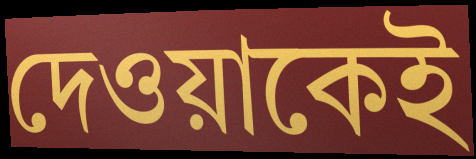
দেওয়াকেই